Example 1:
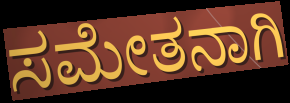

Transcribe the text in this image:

ಸಮೇತನಾಗಿ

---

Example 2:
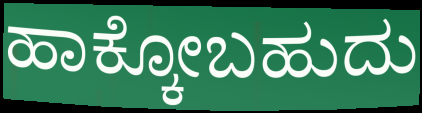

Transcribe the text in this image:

ಹಾಕ್ಕೋಬಹುದು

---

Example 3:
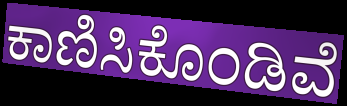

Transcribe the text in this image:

ಕಾಣಿಸಿಕೊಂಡಿವೆ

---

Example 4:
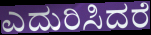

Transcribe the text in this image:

ಎದುರಿಸಿದರೆ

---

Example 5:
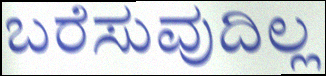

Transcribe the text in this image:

ಬರೆಸುವುದಿಲ್ಲ